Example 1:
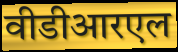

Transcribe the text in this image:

वीडीआरएल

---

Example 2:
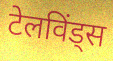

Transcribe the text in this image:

टेलविंड्स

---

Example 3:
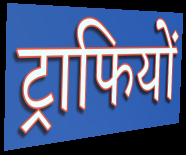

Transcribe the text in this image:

ट्राफियों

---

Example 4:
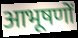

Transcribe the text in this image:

आभूषणों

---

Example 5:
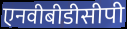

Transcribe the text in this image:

एनवीबीडीसीपी